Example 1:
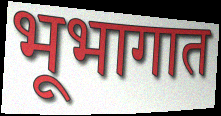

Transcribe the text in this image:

भूभागात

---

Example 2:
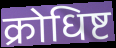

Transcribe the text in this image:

क्रोधिष्ट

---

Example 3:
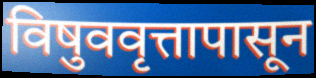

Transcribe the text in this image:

विषुववृत्तापासून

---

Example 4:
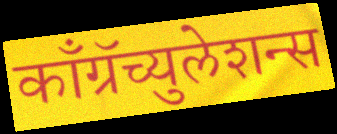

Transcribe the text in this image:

काँग्रॅच्युलेशन्स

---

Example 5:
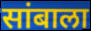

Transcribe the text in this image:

सांबाला